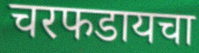
चरफडायचा